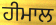
ਹੀਮਾਲ